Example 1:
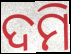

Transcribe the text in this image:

ଦମି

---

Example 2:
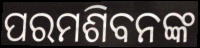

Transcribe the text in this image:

ପରମଶିବନଙ୍କ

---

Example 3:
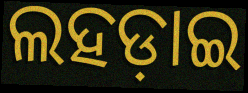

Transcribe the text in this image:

ଲହଡ଼ାଇ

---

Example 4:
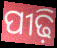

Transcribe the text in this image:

ପୀଢ଼ି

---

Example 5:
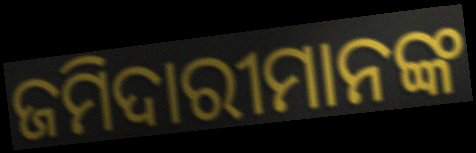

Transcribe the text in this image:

ଜମିଦାରୀମାନଙ୍କ